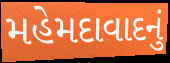
મહેમદાવાદનું